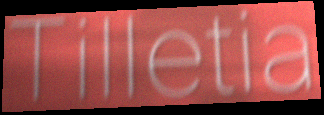
Tilletia